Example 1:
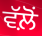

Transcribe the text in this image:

ਵੱਲ਼ੋਂ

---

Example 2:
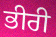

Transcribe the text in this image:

ਭੀਰੀ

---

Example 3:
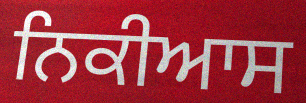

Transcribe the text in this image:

ਨਿਕੀਆਸ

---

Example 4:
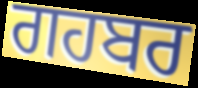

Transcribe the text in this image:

ਗਹਬਰ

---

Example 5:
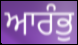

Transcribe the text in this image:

ਆਰੰਭੁ